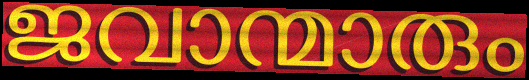
ജവാന്മാരും